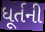
ધૂર્તની